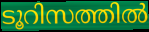
ടൂറിസത്തിൽ